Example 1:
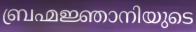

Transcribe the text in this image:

ബ്രഹ്മജ്ഞാനിയുടെ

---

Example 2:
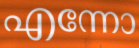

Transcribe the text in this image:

എന്നോ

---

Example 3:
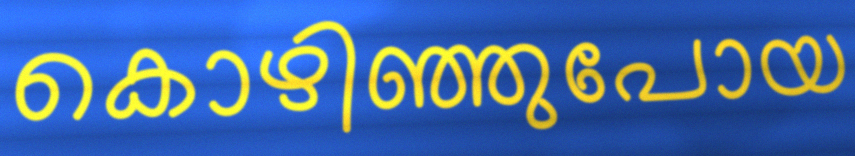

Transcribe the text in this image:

കൊഴിഞ്ഞുപോയ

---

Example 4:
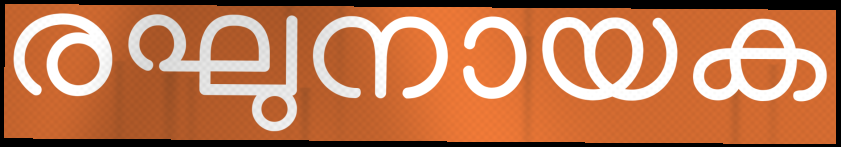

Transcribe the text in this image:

രഘുനായക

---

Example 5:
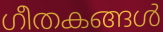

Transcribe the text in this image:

ഗീതകങ്ങൾ